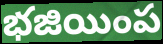
భజియింప